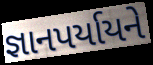
જ્ઞાનપર્યાયને